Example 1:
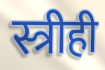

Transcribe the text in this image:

स्त्रीही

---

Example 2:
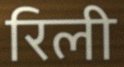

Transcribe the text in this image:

रिली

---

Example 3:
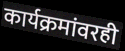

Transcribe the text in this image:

कार्यक्रमांवरही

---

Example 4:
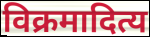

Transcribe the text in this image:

विक्रमादित्य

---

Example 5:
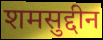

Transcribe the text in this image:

शमसुद्दीन